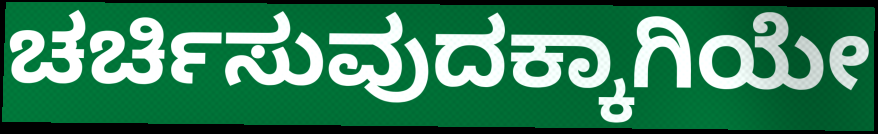
ಚರ್ಚಿಸುವುದಕ್ಕಾಗಿಯೇ